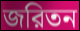
জরিতন